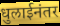
धुलाईनंतर